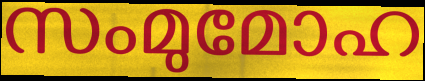
സംമുമോഹ